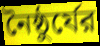
নৈষ্ঠুর্যের